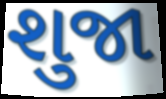
શુજા